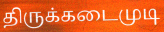
திருக்கடைமுடி